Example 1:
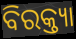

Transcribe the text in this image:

ବିରକ୍ତ୍ୟା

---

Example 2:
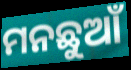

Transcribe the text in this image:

ମନଛୁଆଁ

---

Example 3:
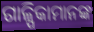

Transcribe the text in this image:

ଗାଳ୍ପିକାମାନଙ୍କ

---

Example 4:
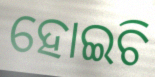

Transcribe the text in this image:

ହୋଇଚି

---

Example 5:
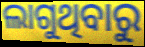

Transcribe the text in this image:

ଲାଗୁଥିବାରୁ